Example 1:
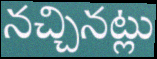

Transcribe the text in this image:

నచ్చినట్లు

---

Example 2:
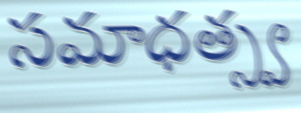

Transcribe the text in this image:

సమాధత్స్వ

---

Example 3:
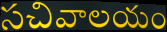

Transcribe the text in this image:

సచివాలయం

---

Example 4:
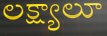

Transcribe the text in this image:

లక్ష్యాలూ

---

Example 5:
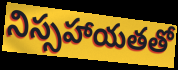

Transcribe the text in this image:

నిస్సహాయతతో